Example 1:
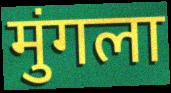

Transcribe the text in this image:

मुंगला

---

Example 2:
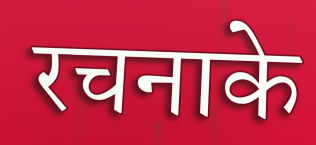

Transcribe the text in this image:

रचनाके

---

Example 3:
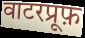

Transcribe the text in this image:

वाटरप्रूफ़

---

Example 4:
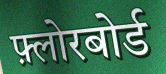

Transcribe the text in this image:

फ़्लोरबोर्ड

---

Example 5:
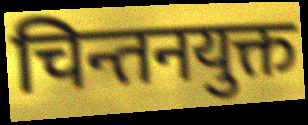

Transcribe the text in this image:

चिन्तनयुक्त